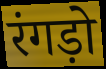
रंगड़ो